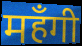
महँगी